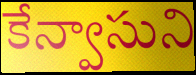
కేన్వాసుని